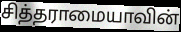
சித்தராமையாவின்